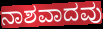
ನಾಶವಾದವು